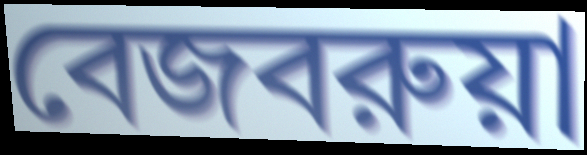
বেজবরুয়া